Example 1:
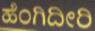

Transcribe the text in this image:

ಹೆಂಗಿದೀರಿ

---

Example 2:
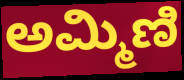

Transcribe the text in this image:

ಅಮ್ಮಿಣಿ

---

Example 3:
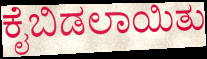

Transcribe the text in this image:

ಕೈಬಿಡಲಾಯಿತು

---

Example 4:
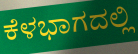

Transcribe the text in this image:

ಕೆಳಭಾಗದಲ್ಲಿ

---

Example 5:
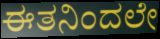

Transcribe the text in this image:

ಈತನಿಂದಲೇ